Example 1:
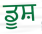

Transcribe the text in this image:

ਡੂਸ਼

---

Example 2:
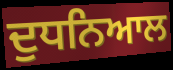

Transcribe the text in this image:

ਦੁਧਨਿਆਲ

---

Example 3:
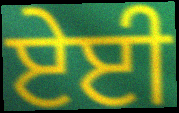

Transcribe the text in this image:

ਏਈ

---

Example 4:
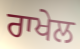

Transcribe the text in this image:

ਰਾਖੇਲ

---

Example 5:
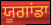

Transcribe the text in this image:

ਯੂਗਾਂਡਾ